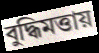
বুদ্ধিমত্তায়